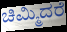
ಚಿಮ್ಮಿದರೆ